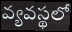
వ్యవస్థలో